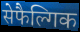
सेफैल्गिक